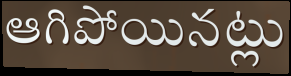
ఆగిపోయినట్లు